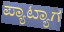
ಪ್ಯಾಟ್ಯಾಗ